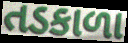
તડકાળા